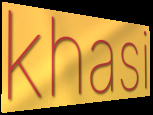
khasi